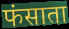
फंसाता